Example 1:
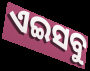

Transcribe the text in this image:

ଏଇସବୁ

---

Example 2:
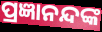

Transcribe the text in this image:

ପ୍ରଜ୍ଞାନନ୍ଦଙ୍କ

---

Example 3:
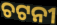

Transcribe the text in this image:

ଚଟନୀ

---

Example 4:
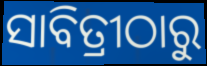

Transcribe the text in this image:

ସାବିତ୍ରୀଠାରୁ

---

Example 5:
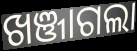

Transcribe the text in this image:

ଖଞ୍ଜାଗଲା